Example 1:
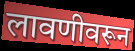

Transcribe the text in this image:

लावणीवरून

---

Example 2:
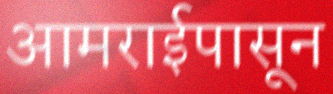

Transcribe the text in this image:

आमराईपासून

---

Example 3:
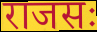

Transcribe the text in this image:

राजसः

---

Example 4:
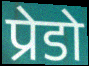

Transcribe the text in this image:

प्रेडो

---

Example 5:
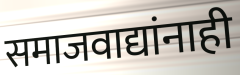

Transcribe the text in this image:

समाजवाद्यांनाही